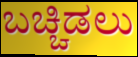
ಬಚ್ಚಿಡಲು